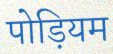
पोड़ियम